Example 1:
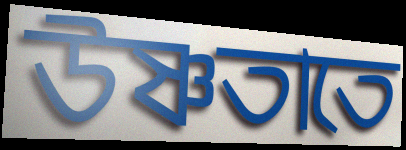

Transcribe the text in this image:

উষ্ণতাতে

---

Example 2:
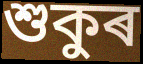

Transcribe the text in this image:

শুকুৰ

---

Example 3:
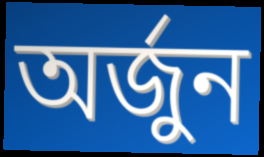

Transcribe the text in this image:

অৰ্জুন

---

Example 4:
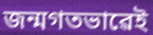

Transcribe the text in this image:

জন্মগতভাৱেই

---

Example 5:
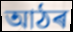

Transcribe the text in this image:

আঠৰ